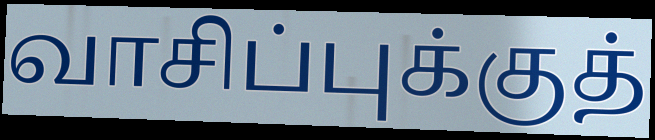
வாசிப்புக்குத்